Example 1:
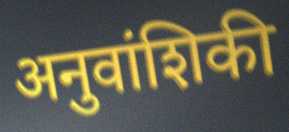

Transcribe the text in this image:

अनुवांशिकी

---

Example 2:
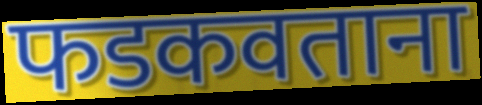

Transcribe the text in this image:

फडकवताना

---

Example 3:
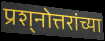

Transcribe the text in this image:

प्रश्नोत्तरांच्या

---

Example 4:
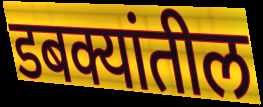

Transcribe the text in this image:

डबक्यांतील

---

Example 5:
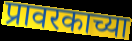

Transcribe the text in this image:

प्रावरकाच्या